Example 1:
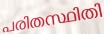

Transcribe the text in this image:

പരിതസ്ഥിതി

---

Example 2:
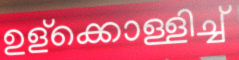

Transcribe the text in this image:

ഉള്ക്കൊള്ളിച്ച്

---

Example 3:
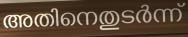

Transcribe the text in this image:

അതിനെതുടർന്ന്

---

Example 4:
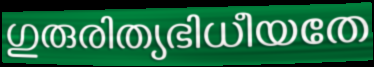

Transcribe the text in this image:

ഗുരുരിത്യഭിധീയതേ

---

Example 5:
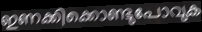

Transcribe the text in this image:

ഇണക്കിക്കൊണ്ടുപോവുക